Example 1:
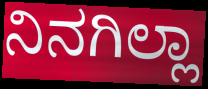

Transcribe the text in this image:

ನಿನಗಿಲ್ಲಾ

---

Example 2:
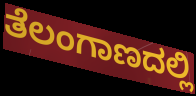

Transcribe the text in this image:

ತೆಲಂಗಾಣದಲ್ಲಿ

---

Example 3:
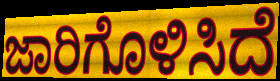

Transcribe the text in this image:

ಜಾರಿಗೊಳಿಸಿದೆ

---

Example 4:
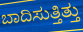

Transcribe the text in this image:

ಬಾದಿಸುತ್ತಿತ್ತು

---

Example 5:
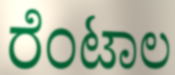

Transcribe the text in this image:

ರೆಂಟಾಲ